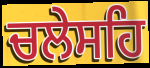
ਚਲੇਸਹਿ